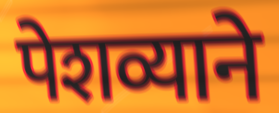
पेशव्याने